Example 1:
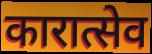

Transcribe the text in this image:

कारात्सेव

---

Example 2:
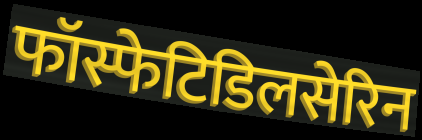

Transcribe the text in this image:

फॉस्फेटिडिलसेरिन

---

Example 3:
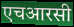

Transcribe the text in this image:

एचआरसी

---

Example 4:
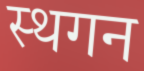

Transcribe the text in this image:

स्थगन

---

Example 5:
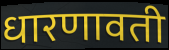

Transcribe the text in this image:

धारणावती